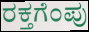
ರಕ್ತಗೆಂಪು